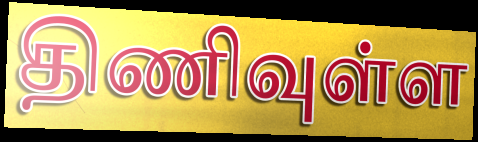
திணிவுள்ள